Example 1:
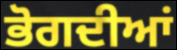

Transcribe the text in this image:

ਭੋਗਦੀਆਂ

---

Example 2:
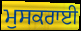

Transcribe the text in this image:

ਮੁਸਕਰਾਈ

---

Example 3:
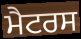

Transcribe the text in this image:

ਮੈਟਰਸ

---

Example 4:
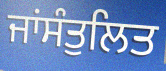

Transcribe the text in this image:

ਜਾਂਸੰਤੁਲਿਤ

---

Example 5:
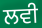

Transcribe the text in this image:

ਲਵੀ